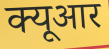
क्यूआर